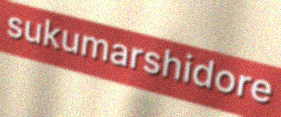
sukumarshidore